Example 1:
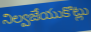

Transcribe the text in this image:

నిల్వజేయుకొట్లు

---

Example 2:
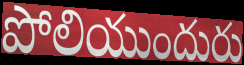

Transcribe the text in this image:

పోలియుందురు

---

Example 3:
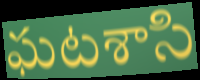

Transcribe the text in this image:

ఘటశాసి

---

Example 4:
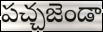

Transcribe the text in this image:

పచ్చజెండా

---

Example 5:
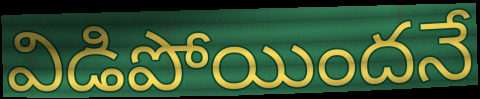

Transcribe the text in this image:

విడిపోయిందనే